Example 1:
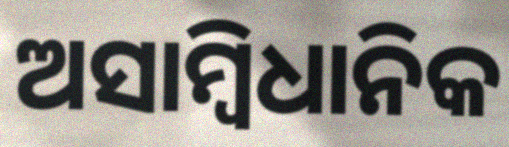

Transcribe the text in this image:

ଅସାମ୍ୱିଧାନିକ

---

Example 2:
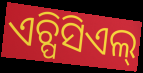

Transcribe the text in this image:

ଏଚ୍ପିସିଏଲ୍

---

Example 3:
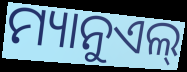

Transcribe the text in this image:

ମ୍ୟାନୁଏଲ୍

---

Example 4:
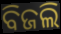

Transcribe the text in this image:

ବିଜଲି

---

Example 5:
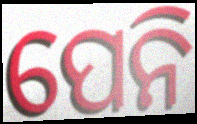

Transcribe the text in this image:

ପେନି